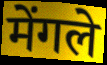
मेंगले